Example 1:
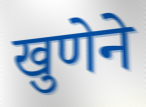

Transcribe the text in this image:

खुणेने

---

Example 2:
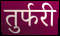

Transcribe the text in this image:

तुर्फरी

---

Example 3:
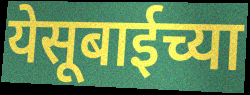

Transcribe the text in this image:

येसूबाईच्या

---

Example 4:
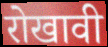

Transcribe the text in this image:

रोखावी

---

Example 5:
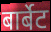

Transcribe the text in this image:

बार्बेट